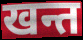
खन्त